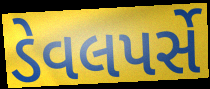
ડેવલપર્સે